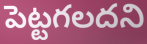
పెట్టగలదని